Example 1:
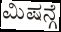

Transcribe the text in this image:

ಮಿಷನ್ಗೆ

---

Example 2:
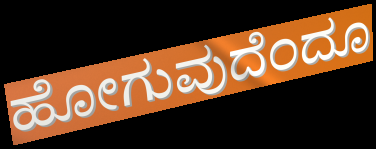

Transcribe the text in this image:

ಹೋಗುವುದೆಂದೂ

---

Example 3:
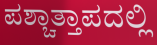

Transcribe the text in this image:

ಪಶ್ಚಾತ್ತಾಪದಲ್ಲಿ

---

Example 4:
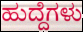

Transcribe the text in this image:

ಹುದ್ದೆಗಳು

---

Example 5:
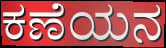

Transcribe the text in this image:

ಕಣೆಯನ